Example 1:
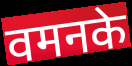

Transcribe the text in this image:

वमनके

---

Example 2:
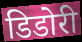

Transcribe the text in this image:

डिडोरी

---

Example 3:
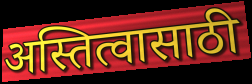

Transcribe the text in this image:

अस्तित्वासाठी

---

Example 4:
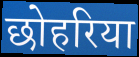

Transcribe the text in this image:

छोहरिया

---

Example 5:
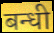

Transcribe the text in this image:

बन्धी